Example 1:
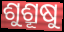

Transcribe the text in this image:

ଶୁଶ୍ରୂଷୁ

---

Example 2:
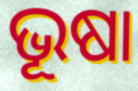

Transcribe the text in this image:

ଭୂଷା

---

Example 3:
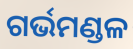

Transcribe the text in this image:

ଗର୍ଭମଣ୍ଡଳ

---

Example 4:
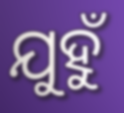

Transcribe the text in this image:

ଯୁହୁଁ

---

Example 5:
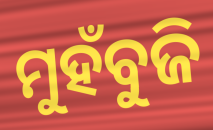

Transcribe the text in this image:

ମୁହଁବୁଜି